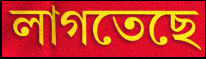
লাগতেছে